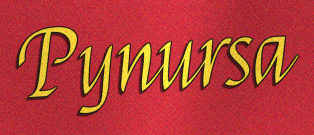
Pynursa